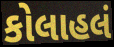
કોલાહલં